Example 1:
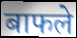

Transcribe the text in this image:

बाफले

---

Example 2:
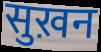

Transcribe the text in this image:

सुख़न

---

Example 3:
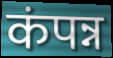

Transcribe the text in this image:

कंपन्न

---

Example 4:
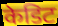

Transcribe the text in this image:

केडिट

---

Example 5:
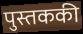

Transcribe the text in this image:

पुस्तककी